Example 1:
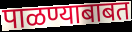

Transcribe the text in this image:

पाळण्याबाबत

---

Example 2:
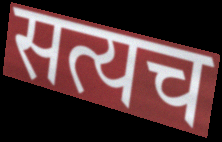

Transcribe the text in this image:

सत्यच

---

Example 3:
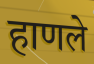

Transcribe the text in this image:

हाणले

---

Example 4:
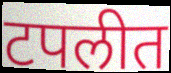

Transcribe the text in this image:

टपलीत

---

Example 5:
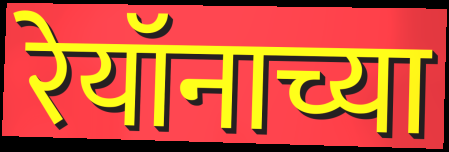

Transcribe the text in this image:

रेयॉनाच्या